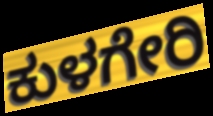
ಕುಳಗೇರಿ